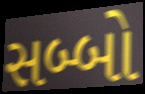
સબ્બો